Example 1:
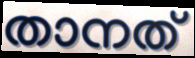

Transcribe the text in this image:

താനത്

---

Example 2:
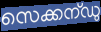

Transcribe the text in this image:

സെക്കന്ഡു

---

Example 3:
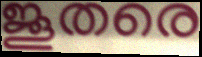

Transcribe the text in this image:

ജൂതരെ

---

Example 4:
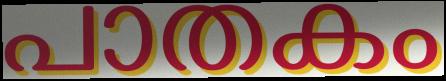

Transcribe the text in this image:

പാതകം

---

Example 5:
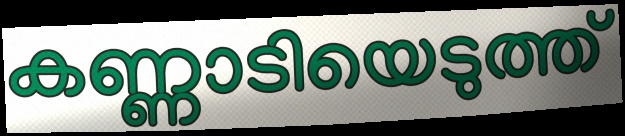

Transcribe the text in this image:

കണ്ണാടിയെടുത്ത്